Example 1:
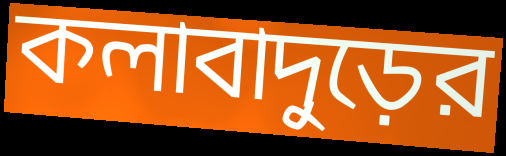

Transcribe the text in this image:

কলাবাদুড়ের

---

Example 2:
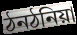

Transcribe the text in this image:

ঠনঠনিয়া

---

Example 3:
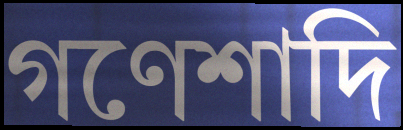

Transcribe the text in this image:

গণেশাদি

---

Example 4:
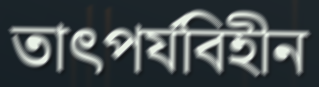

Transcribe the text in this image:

তাৎপর্যবিহীন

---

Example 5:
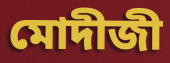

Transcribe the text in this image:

মোদীজী